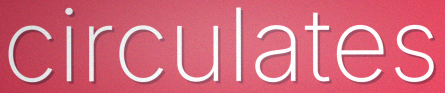
circulates